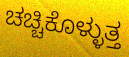
ಚಚ್ಚಿಕೊಳ್ಳುತ್ತ